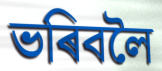
ভৰিবলৈ